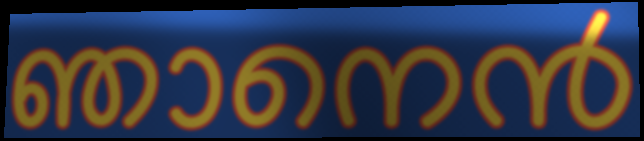
ഞാനെൻ